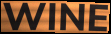
WINE